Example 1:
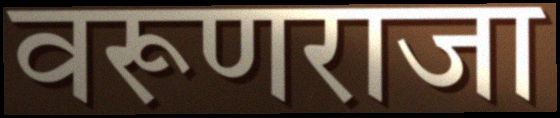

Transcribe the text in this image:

वरूणराजा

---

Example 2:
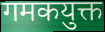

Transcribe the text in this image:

गमकयुक्त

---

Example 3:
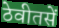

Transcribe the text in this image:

ठेवीतसें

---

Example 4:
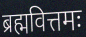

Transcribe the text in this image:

ब्रह्मवित्तमः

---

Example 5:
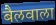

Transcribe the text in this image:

बैलवाला